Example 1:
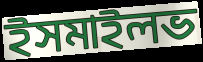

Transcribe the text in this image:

ইসমাইলভ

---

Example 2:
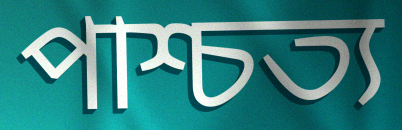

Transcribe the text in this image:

পাশ্চত্য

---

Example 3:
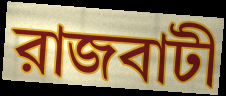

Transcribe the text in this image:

রাজবাটী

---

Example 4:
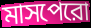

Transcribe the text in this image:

মাসপেরো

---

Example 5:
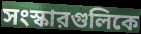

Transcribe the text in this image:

সংস্কারগুলিকে